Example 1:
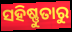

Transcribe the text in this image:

ସହିଷ୍ଣୁତାରୁ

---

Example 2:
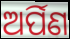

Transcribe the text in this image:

ଅର୍ପିଣ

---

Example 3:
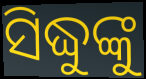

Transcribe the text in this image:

ସିଦ୍ଧୁଙ୍କୁ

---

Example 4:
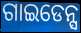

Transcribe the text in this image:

ଗାଇଡେନ୍ସ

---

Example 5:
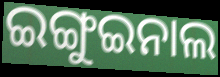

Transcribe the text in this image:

ଇଙ୍ଗୁଇନାଲ